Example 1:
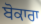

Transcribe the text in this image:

ਬੋਕਾਰਾ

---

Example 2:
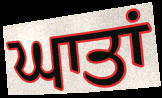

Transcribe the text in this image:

ਘਾਤਾਂ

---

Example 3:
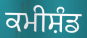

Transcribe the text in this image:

ਕਮੀਸ਼ੰਡ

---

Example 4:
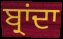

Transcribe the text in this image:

ਬ੍ਰਾਂਦਾ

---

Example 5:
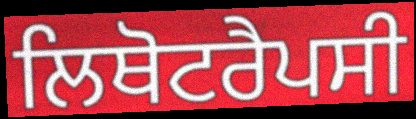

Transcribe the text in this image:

ਲਿਥੋਟਰੈਪਸੀ